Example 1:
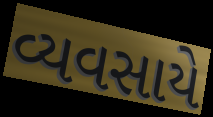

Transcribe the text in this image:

વ્યવસાયે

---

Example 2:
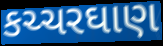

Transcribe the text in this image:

કચ્ચરઘાણ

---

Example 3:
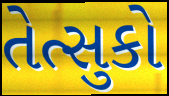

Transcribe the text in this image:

તેત્સુકો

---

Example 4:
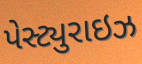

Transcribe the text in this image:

પેસ્ટ્યુરાઇઝ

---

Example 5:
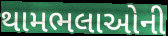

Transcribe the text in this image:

થામભલાઓની